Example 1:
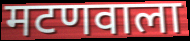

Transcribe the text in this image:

मटणवाला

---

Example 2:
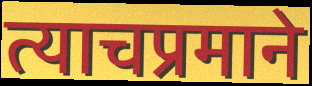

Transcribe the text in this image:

त्याचप्रमाने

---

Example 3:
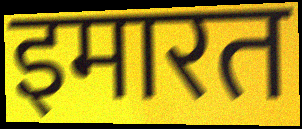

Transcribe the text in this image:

इमारत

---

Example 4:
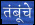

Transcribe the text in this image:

तंबूंचे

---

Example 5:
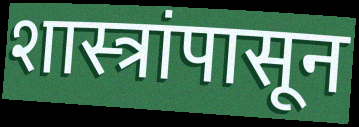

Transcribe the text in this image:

शास्त्रांपासून